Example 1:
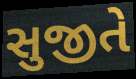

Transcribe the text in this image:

સુજીતે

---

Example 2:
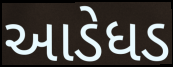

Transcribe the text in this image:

આડેધડ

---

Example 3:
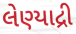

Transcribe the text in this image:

લેણ્યાદ્રી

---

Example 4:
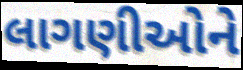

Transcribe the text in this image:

લાગણીઓને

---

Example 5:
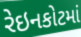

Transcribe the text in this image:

રેઇનકોટમાં